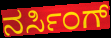
ನರ್ಸಿಂಗ್